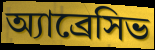
অ্যাব্রেসিভ